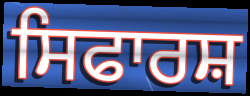
ਸਿਫਾਰਸ਼